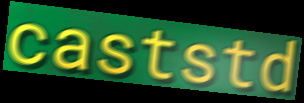
caststd